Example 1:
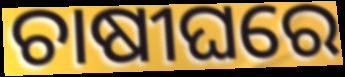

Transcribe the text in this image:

ଚାଷୀଘରେ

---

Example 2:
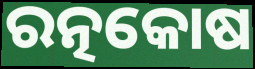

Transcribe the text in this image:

ରତ୍ନକୋଷ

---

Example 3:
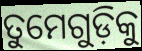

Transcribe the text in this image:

ତୁମେଗୁଡ଼ିକୁ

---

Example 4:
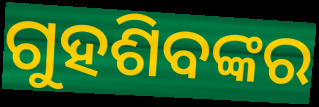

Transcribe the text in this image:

ଗୁହଶିବଙ୍କର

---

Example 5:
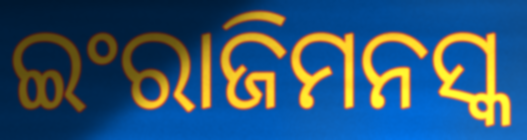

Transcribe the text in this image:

ଇଂରାଜିମନସ୍କ